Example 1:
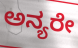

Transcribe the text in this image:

ಅನ್ಯರೇ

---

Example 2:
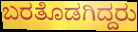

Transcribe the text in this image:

ಬರತೊಡಗಿದ್ದರು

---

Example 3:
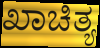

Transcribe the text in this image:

ಖಾಚಿತ್ಯ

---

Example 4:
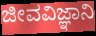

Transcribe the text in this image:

ಜೀವವಿಜ್ಞಾನಿ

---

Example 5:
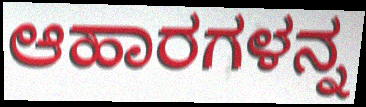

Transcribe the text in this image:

ಆಹಾರಗಳನ್ನ